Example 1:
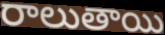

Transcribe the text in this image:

రాలుతాయి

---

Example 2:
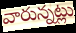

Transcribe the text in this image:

వారున్నట్లు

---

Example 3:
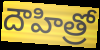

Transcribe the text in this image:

దౌహిత్రో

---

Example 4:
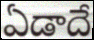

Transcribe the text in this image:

ఏడాదే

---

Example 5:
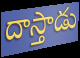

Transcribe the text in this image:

దాస్తాడు